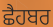
ਛੈਹਬਰ